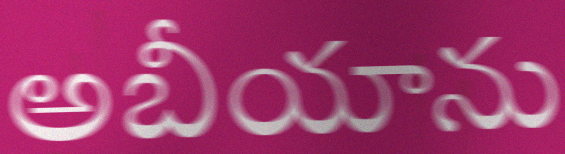
అబీయాను